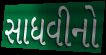
સાધવીનો